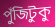
পুঁজিটুকু